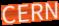
CERN